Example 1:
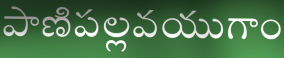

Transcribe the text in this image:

పాణిపల్లవయుగాం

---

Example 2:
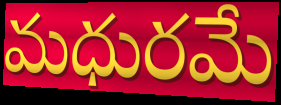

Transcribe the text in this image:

మధురమే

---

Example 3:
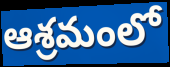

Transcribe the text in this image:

ఆశ్రమంలో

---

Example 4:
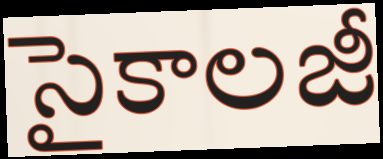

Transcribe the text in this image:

సైకాలజీ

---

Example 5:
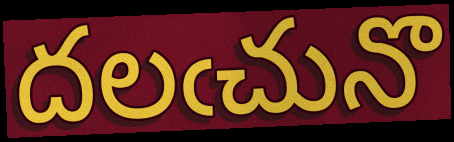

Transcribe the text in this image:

దలఁచునొ